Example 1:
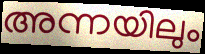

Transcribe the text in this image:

അന്നയിലും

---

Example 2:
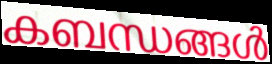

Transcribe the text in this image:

കബന്ധങ്ങൾ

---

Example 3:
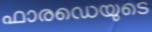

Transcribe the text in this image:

ഫാരഡെയുടെ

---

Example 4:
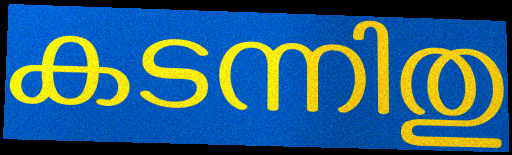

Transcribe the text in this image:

കടന്നിതു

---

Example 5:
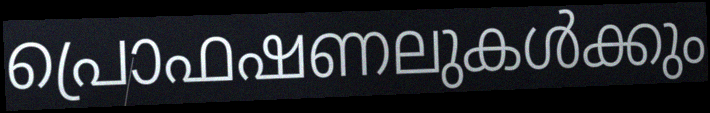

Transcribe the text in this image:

പ്രൊഫഷണലുകൾക്കും